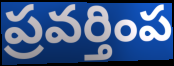
ప్రవర్తింప